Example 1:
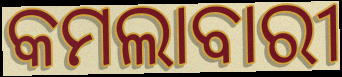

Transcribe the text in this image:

କମଲାବାରୀ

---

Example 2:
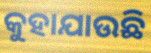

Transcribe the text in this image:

କୁହାଯାଉଛି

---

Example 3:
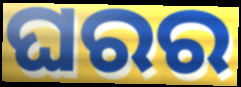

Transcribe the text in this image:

ଘରର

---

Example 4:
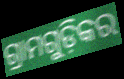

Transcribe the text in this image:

ଗ୍ରାମଗୁଡ଼ିକର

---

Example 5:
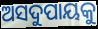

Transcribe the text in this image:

ଅସଦୁପାୟକୁ